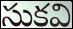
సుకవి